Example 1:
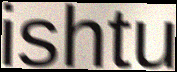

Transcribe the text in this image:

ishtu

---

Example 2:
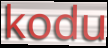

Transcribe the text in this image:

kodu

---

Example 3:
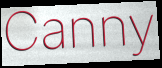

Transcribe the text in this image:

Canny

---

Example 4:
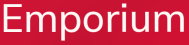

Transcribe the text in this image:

Emporium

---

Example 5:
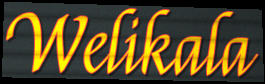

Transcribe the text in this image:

Welikala